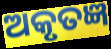
ଅକୃତଜ୍ଞ